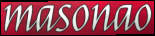
masonao